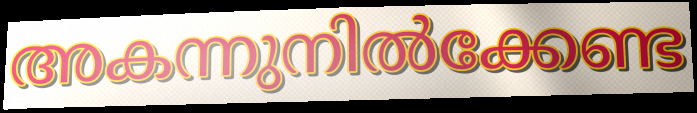
അകന്നുനിൽക്കേണ്ട